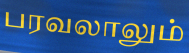
பரவலாலும்